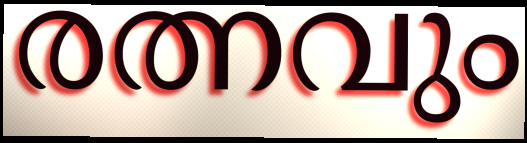
രത്നവും